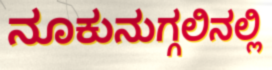
ನೂಕುನುಗ್ಗಲಿನಲ್ಲಿ